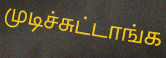
முடிச்சுட்டாங்க